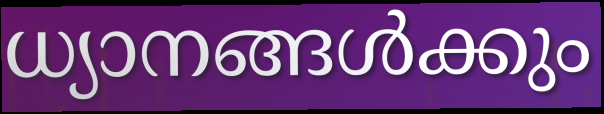
ധ്യാനങ്ങൾക്കും